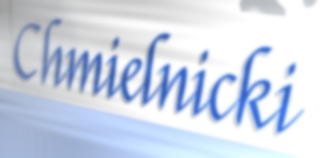
Chmielnicki